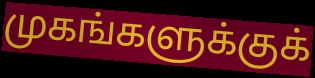
முகங்களுக்குக்